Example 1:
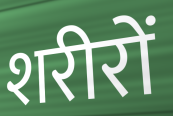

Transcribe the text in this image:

शरीरों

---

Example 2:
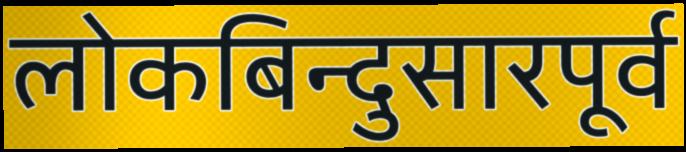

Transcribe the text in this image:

लोकबिन्दुसारपूर्व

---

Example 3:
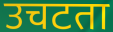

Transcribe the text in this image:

उचटता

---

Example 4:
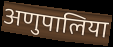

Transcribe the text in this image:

अणुपालिया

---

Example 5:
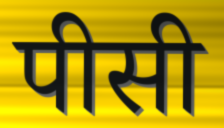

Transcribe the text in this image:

पीसी